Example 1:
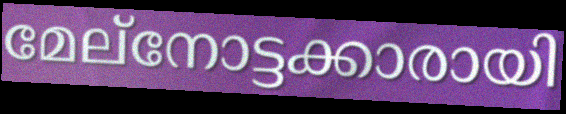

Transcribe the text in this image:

മേല്നോട്ടക്കാരായി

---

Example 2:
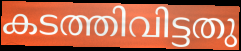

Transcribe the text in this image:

കടത്തിവിട്ടതു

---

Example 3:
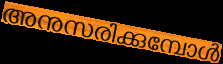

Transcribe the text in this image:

അനുസരിക്കുമ്പോൾ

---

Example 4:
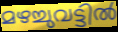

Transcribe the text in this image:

മഴച്ചുവട്ടിൽ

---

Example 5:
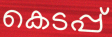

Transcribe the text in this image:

കെടപ്പ്